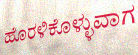
ಹೊರಳಿಕೊಳ್ಳುವಾಗ